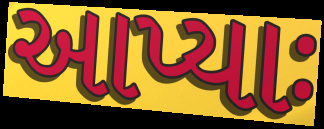
આપ્યાઃ